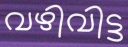
വഴിവിട്ട